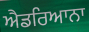
ਐਡਰਿਆਨਾ